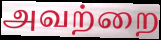
அவற்றை